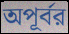
অপূর্বর